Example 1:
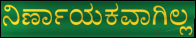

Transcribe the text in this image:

ನಿರ್ಣಾಯಕವಾಗಿಲ್ಲ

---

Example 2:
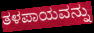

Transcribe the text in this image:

ತಳಪಾಯವನ್ನು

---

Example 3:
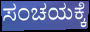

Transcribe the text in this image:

ಸಂಚಯಕ್ಕೆ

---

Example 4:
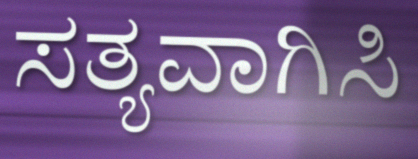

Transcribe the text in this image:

ಸತ್ಯವಾಗಿಸಿ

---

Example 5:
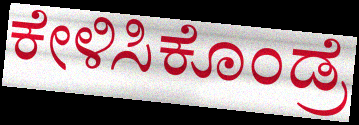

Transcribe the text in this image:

ಕೇಳಿಸಿಕೊಂಡ್ರೆ